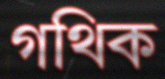
গথিক